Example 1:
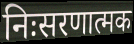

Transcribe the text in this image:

निःसरणात्मक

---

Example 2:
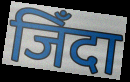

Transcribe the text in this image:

जिँदा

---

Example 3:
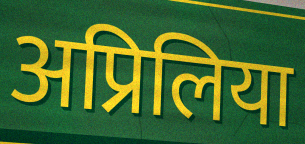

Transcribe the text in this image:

अप्रिलिया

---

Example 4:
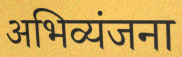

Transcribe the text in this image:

अभिव्यंजना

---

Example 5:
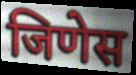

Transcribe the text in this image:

जिणेस